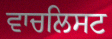
ਵਾਚਲਿਸਟ